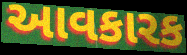
આવકારક